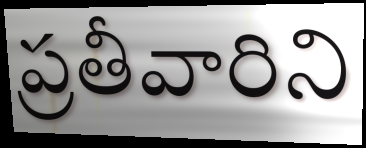
ప్రతీవారిని